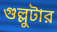
গুল্লুটার